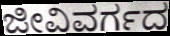
ಜೀವಿವರ್ಗದ